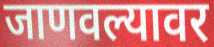
जाणवल्यावर